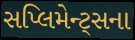
સપ્લિમેન્ટ્સના